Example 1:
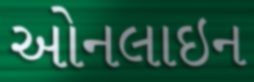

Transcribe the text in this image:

ઓનલાઇન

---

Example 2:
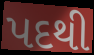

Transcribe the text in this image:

પદથી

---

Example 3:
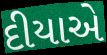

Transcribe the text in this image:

દીયાએ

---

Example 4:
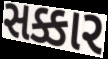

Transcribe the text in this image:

સક્કાર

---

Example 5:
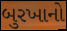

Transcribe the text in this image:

બુરખાનો